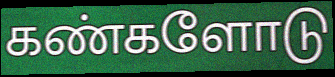
கண்களோடு